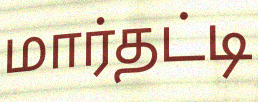
மார்தட்டி